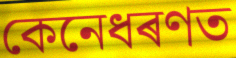
কেনেধৰণত